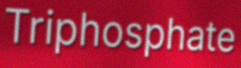
Triphosphate